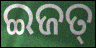
ଇଜତ୍